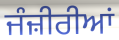
ਜੰਜ਼ੀਰੀਆਂ